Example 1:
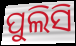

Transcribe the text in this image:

ପୁଲିସି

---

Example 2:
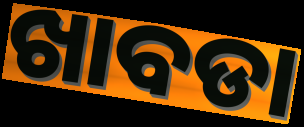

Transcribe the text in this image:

ଖାବଡା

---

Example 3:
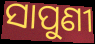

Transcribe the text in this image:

ସାପୁଣୀ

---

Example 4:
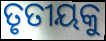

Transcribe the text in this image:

ତୃତୀୟକୁ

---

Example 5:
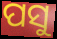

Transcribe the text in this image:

ପସୁ